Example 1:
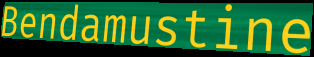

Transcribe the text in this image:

Bendamustine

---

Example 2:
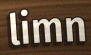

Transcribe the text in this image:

limn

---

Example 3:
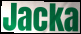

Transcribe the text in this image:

Jacka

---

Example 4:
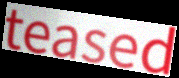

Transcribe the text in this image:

teased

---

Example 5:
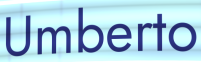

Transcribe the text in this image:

Umberto